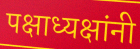
पक्षाध्यक्षांनी